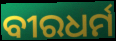
ବୀରଧର୍ମ